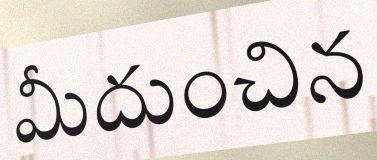
మీదుంచిన